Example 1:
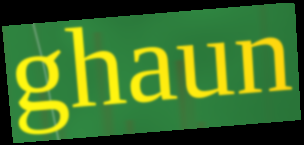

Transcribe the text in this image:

ghaun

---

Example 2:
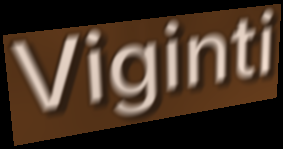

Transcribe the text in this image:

Viginti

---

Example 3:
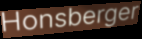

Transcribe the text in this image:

Honsberger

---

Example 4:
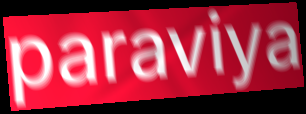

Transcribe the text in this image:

paraviya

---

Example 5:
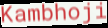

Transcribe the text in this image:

Kambhoji